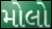
મોલો